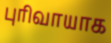
புரிவாயாக